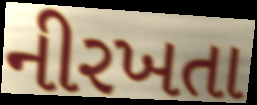
નીરખતા